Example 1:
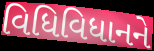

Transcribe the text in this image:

વિધિવિધાનને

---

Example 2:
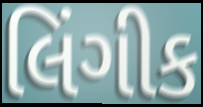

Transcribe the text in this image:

લિંગીક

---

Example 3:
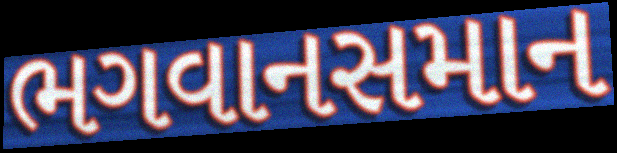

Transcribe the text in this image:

ભગવાનસમાન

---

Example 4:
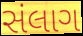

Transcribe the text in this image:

સંલાગ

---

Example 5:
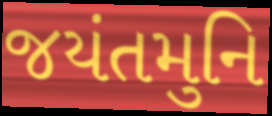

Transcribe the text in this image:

જયંતમુનિ